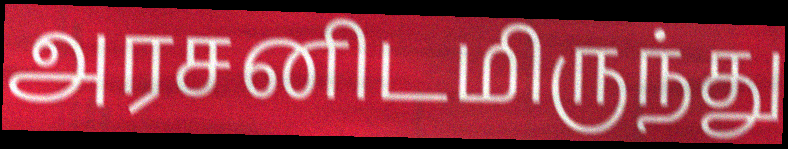
அரசனிடமிருந்து